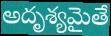
అదృశ్యమైతే